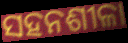
ସହନଶୀଳା